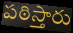
పఠిస్తారు